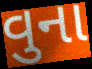
વુના